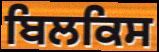
ਬਿਲਕਿਸ